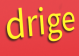
drige